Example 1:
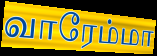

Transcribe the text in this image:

வாரேம்மா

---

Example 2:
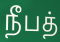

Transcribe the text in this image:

நீபத்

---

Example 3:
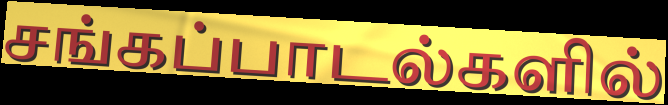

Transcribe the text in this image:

சங்கப்பாடல்களில்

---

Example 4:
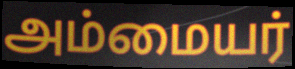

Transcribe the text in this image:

அம்மையர்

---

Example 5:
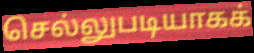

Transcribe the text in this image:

செல்லுபடியாகக்